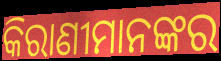
କିରାଣୀମାନଙ୍କର